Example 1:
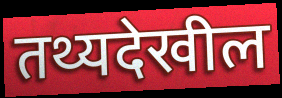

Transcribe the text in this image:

तथ्यदेखील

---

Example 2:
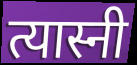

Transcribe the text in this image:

त्यास्नी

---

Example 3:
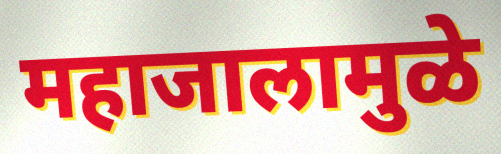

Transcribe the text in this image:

महाजालामुळे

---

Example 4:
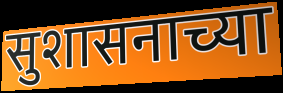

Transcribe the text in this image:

सुशासनाच्या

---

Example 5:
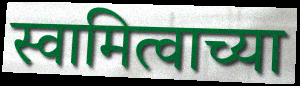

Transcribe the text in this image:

स्वामित्वाच्या